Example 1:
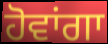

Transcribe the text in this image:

ਹੋਵਾਂਗਾ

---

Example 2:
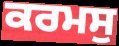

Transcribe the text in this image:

ਕਰਮਸੁ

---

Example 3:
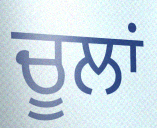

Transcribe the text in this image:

ਚੂਲਾਂ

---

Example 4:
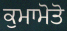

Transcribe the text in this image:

ਕੁਮਾਮੋਤੋ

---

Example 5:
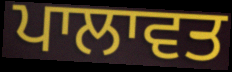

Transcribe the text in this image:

ਪਾਲਾਵਤ